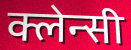
क्लेन्सी